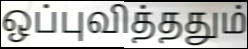
ஒப்புவித்ததும்